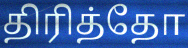
திரித்தோ